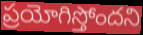
ప్రయోగిస్తోందని